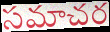
సమాచర